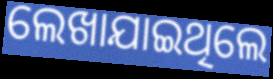
ଲେଖାଯାଇଥିଲେ